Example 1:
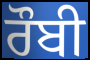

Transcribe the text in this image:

ਰੌਬੀ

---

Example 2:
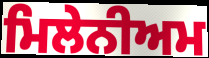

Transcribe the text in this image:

ਮਿਲੇਨੀਅਮ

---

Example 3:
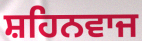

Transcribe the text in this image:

ਸ਼ਹਿਨਵਾਜ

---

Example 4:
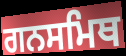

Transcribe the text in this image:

ਗਨਸਮਿਥ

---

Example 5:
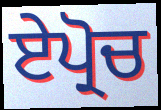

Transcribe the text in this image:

ਏਪ੍ਰੋਚ